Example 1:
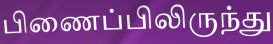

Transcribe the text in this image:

பிணைப்பிலிருந்து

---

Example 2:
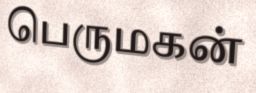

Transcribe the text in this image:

பெருமகன்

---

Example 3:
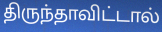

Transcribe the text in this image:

திருந்தாவிட்டால்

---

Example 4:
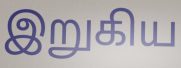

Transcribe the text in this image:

இறுகிய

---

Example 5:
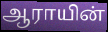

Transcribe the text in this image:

ஆராயின்